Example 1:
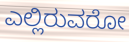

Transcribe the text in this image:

ಎಲ್ಲಿರುವರೋ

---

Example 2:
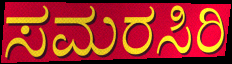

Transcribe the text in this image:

ಸಮರಸಿರಿ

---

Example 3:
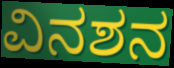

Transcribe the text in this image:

ವಿನಶನ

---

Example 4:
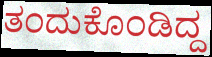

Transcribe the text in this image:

ತಂದುಕೊಂಡಿದ್ದ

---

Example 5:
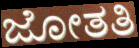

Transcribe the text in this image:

ಜೋತತಿ